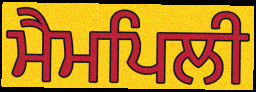
ਮੈਮਪਿਲੀ